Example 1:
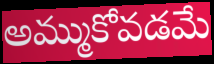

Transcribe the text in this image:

అమ్ముకోవడమే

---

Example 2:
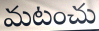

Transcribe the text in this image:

మటంచు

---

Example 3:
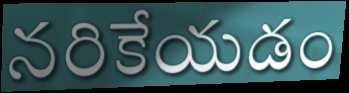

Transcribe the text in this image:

నరికేయడం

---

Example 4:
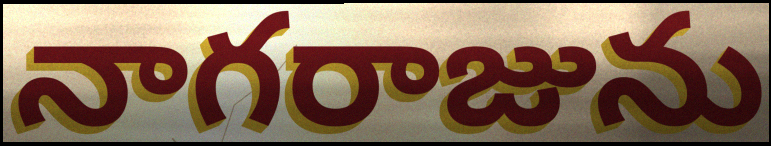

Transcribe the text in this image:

నాగరాజును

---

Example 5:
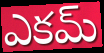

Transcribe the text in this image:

ఎకమ్